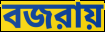
বজরায়